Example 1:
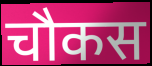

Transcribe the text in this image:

चौकस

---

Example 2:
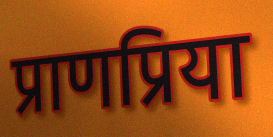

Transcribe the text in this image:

प्राणप्रिया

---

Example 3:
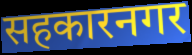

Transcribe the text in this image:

सहकारनगर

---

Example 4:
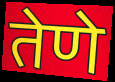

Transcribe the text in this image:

तेणे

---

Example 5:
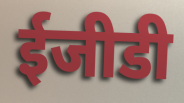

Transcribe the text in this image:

ईजीडी